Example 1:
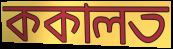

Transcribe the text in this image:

ককালত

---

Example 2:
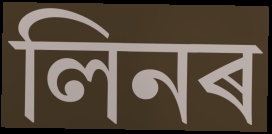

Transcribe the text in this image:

লিনৰ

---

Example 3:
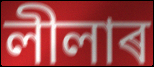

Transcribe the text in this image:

লীলাৰ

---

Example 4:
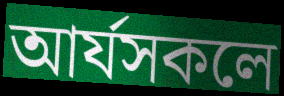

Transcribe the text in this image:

আৰ্যসকলে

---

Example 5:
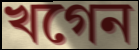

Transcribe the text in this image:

খগেন